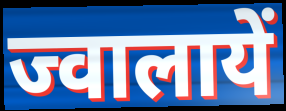
ज्वालायें